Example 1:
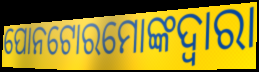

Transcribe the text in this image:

ପୋନଟୋରମୋଙ୍କଦ୍ୱାରା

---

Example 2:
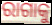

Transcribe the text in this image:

ରାଗାକୁ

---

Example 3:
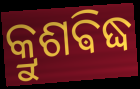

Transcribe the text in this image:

କ୍ରୁଶଵିଦ୍ଧ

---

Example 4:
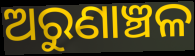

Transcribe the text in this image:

ଅରୁଣାଞ୍ଚଳ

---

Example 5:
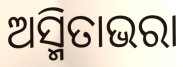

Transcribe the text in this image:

ଅସ୍ମିତାଭରା